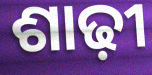
ଶାଢ଼ୀ